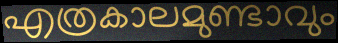
എത്രകാലമുണ്ടാവും